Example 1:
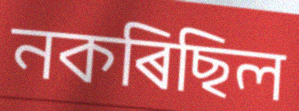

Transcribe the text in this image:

নকৰিছিল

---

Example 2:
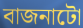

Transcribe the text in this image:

বাজনাটো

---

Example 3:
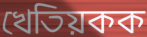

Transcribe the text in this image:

খেতিয়কক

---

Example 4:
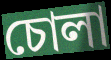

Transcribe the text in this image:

চোলা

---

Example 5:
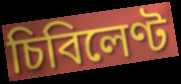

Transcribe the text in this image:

চিবিলেণ্ট